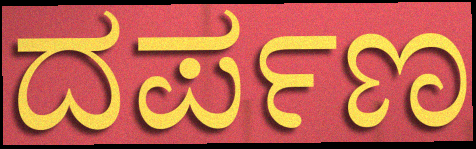
ದರ್ಪಣ